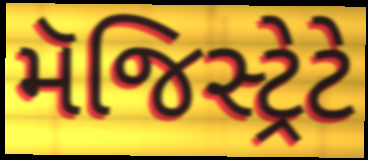
મૅજિસ્ટ્રેટે